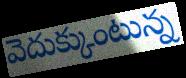
వెదుక్కుంటున్న